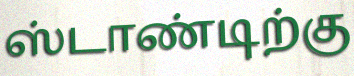
ஸ்டாண்டிற்கு